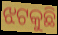
ଝଟକୁଛି